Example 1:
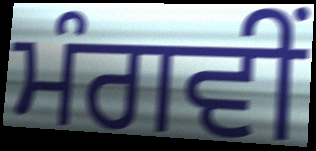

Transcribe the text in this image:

ਮੰਗਵੀਂ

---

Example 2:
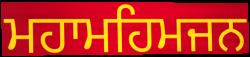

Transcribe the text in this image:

ਮਹਾਮਹਿਮਜਨ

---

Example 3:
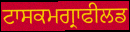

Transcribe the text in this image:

ਟਾਸਕਮਗ੍ਰਾਫੀਲਡ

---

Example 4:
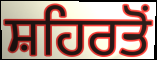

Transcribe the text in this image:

ਸ਼ਹਿਰਤੋਂ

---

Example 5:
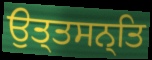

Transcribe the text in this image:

ਉਤ੍ਤਸਨ੍ਤਿ